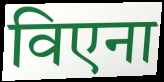
विएना